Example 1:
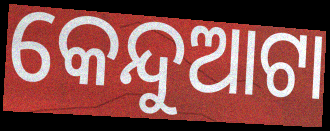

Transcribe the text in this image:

କେନ୍ଦୁଆଟା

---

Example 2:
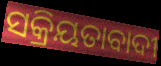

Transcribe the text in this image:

ସକ୍ରିୟତାବାଦୀ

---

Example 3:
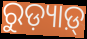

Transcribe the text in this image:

ରୁଡ଼୍ୟାଡ଼୍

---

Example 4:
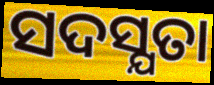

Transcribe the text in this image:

ସଦସ୍ଯତା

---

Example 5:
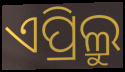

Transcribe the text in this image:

ଏପ୍ରିଲ୍ରୁ